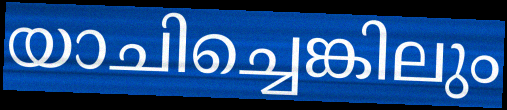
യാചിച്ചെങ്കിലും